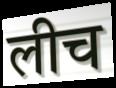
लीच